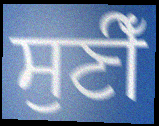
ਸੁਣੀਁ